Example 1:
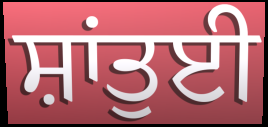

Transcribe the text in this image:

ਸ਼ਾਂਤੁਈ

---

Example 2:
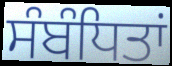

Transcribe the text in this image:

ਸੰਬੰਧਿਤਾਂ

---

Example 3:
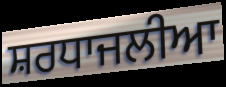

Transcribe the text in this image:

ਸ਼ਰਧਾਜਲੀਆ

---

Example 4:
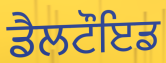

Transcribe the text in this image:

ਡੈਲਟੌਇਡ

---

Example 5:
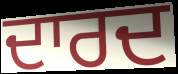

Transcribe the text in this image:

ਦਾਰਦ